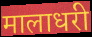
मालाधरी